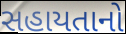
સહાયતાનો